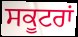
ਸਕੂਟਰਾਂ